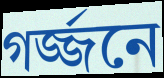
গর্জ্জনে